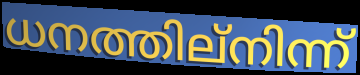
ധനത്തില്നിന്ന്